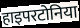
हाइपरटोनिया